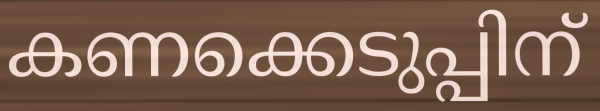
കണക്കെടുപ്പിന്